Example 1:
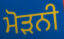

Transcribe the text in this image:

ਮੋੜਨੀ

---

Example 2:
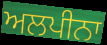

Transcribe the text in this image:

ਅਲਪੀਨਾ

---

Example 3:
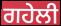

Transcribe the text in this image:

ਗਹੇਲੀ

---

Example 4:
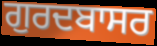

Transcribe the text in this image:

ਗੁਰਦਬਾਸਰ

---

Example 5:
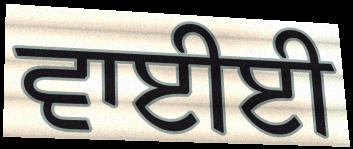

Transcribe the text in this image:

ਵਾਈਈ